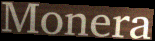
Monera